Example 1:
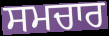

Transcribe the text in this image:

ਸਮਚਾਰ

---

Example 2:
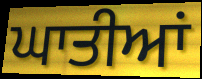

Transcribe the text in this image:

ਘਾਤੀਆਂ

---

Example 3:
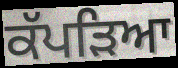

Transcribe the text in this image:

ਕੱਪੜਿਆ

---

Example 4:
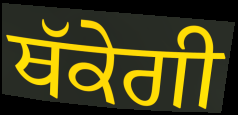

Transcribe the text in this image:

ਥੱਕੇਗੀ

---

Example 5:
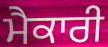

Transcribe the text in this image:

ਮੈਕਾਰੀ